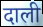
दाली